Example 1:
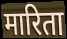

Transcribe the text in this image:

मारिता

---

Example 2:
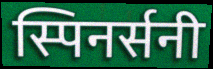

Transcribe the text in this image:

स्पिनर्सनी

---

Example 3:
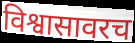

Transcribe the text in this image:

विश्वासावरच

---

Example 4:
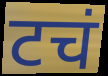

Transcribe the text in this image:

टचं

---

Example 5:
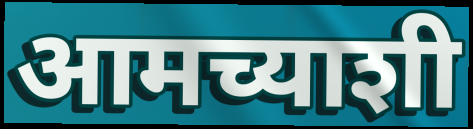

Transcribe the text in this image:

आमच्याशी